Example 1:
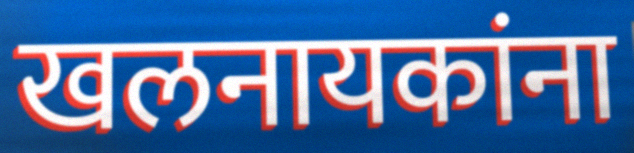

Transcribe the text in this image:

खलनायकांना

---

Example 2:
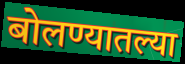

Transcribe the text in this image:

बोलण्यातल्या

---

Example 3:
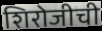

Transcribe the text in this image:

शिरोजीची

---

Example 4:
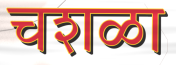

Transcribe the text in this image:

चशळा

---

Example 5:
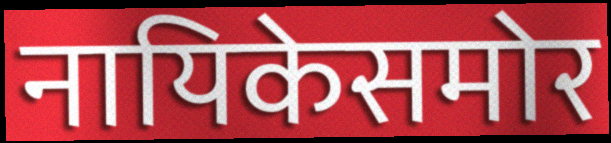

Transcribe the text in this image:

नायिकेसमोर